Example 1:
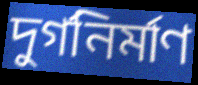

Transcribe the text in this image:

দুর্গনির্মাণ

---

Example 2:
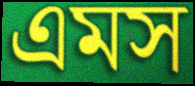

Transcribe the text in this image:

এমস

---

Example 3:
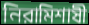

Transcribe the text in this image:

নিরামিশাষী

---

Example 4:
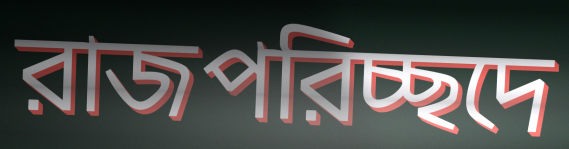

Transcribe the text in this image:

রাজপরিচ্ছদে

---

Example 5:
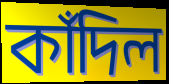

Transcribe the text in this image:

কাঁদিল